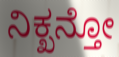
ನಿಕ್ಖನ್ತೋ